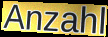
Anzahl